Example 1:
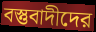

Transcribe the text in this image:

বস্তুবাদীদের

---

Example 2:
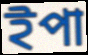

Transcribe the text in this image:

ইপা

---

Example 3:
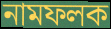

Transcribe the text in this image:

নামফলক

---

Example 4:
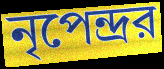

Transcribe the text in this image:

নৃপেন্দ্রর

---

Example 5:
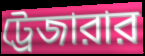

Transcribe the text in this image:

ট্রেজারার